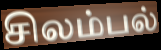
சிலம்பல்